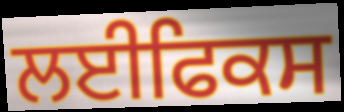
ਲਈਫਿਕਸ